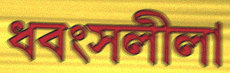
ধবংসলীলা